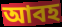
আবহ